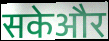
सकेऔर